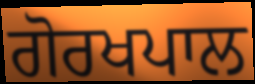
ਗੋਰਖਪਾਲ